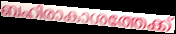
ബഹിരാകാശത്തേക്ക്